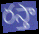
రస్తా